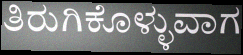
ತಿರುಗಿಕೊಳ್ಳುವಾಗ